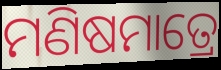
ମଣିଷମାତ୍ରେ